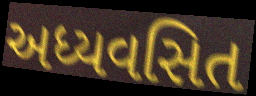
અધ્યવસિત